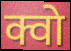
क्वो